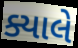
ક્યાલે